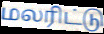
மலரிட்டு